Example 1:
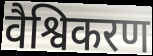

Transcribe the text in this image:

वैश्विकरण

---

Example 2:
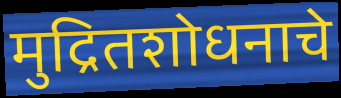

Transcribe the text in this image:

मुद्रितशोधनाचे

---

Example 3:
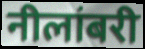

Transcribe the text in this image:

नीलांबरी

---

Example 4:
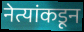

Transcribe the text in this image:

नेत्यांकडून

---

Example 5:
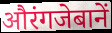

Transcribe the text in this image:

औरंगजेबानें